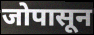
जोपासून